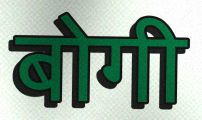
बोगी